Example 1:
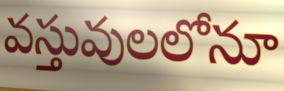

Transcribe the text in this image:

వస్తువులలోనూ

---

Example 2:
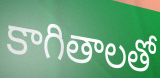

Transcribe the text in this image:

కాగితాలతో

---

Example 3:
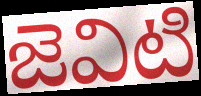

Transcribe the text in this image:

జెవిటి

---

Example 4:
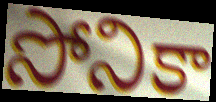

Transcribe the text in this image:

సోనికా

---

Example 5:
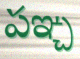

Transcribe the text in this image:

పఞ్చ